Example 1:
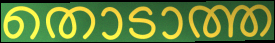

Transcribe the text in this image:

തൊടാത്ത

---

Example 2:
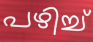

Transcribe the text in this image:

പഴിച്ച്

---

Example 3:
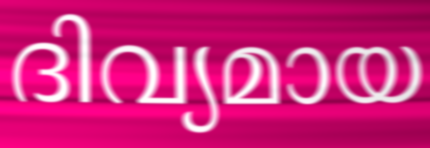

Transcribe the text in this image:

ദിവ്യമായ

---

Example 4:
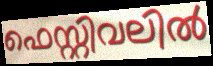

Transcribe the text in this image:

ഫെസ്റ്റിവലിൽ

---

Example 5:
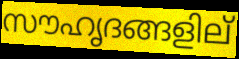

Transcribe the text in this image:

സൗഹൃദങ്ങളില്